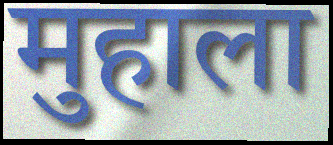
मुहाला